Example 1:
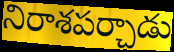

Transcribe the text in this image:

నిరాశపర్చాడు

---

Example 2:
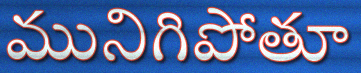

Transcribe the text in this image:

మునిగిపోతూ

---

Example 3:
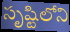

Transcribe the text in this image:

సృష్టిలోని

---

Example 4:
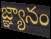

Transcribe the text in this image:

జ్ఞ్యానం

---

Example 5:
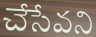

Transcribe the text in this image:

చేసేవని